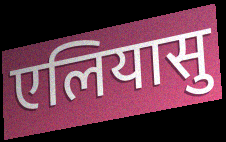
एलियासु